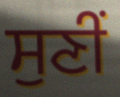
ਸੁਣੀਂ